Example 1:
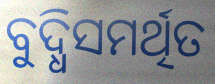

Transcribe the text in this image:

ବୁଦ୍ଧିସମର୍ଥିତ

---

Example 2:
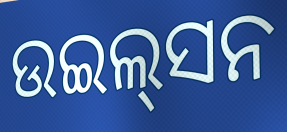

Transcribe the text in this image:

ଉଇଲ୍‌ସନ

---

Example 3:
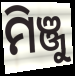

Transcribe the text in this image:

ମିଞ୍ଜୁ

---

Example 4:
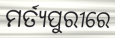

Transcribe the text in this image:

ମର୍ତ୍ୟପୁରୀରେ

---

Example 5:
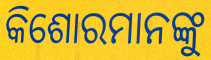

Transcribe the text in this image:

କିଶୋରମାନଙ୍କୁ